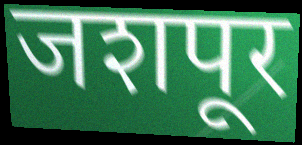
जशपूर